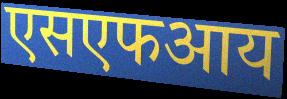
एसएफआय